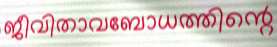
ജീവിതാവബോധത്തിന്റെ